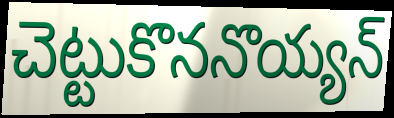
చెట్టుకొననొయ్యన్